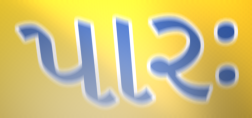
પારઃ